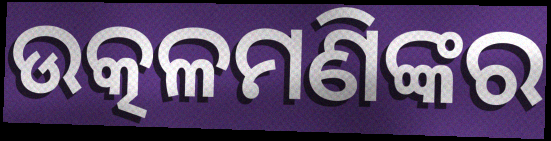
ଉତ୍କଳମଣିଙ୍କର